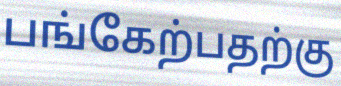
பங்கேற்பதற்கு